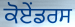
ਕੋਏਂਡਰਸ